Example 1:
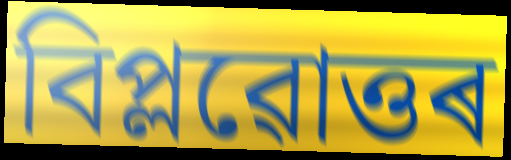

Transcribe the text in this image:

বিপ্লৱোত্তৰ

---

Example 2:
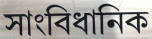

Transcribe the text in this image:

সাংবিধানিক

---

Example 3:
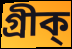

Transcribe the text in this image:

গ্ৰীক্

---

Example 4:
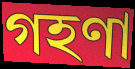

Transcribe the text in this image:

গহণা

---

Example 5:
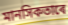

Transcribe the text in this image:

মানসিকতাৰে